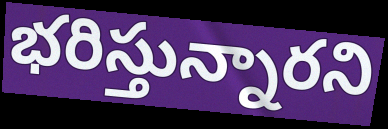
భరిస్తున్నారని